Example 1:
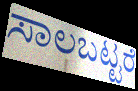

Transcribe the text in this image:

ಸಾಲಬಟ್ಟರೆ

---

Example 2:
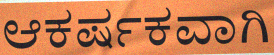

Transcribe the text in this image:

ಆಕರ್ಷಕವಾಗಿ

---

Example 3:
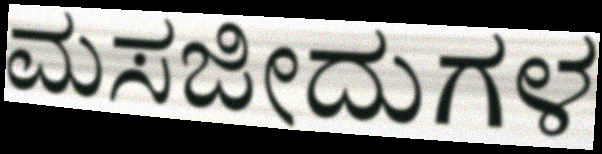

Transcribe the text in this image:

ಮಸಜೀದುಗಳ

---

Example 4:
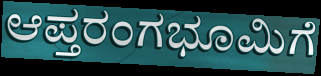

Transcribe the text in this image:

ಆಪ್ತರಂಗಭೂಮಿಗೆ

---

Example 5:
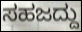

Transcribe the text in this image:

ಸಹಜದ್ದು